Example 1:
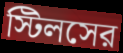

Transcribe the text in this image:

স্টিলসের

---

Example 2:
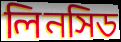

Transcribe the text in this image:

লিনসিড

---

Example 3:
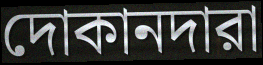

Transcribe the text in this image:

দোকানদারা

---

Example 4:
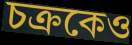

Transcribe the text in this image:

চক্রকেও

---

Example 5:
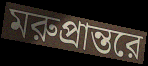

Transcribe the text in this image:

মরুপ্রান্তরে